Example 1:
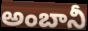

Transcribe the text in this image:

అంబానీ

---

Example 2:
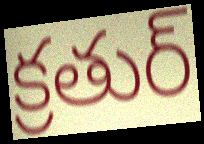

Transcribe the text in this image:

క్రతుర్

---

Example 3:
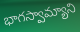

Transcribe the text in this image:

భాగస్వామ్యాని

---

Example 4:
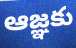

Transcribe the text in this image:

ఆజ్ఞకు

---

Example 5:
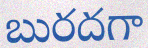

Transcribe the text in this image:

బురదగా